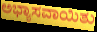
ಅಭ್ಯಾಸವಾಯಿತು